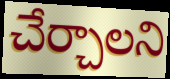
చేర్చాలని